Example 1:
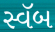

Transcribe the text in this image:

સ્વૅબ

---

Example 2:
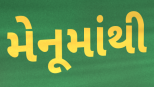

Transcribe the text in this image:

મેનૂમાંથી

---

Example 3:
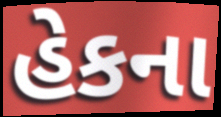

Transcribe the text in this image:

હેકના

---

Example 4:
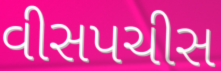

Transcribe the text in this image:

વીસપચીસ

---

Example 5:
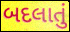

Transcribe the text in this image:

બદલાતું